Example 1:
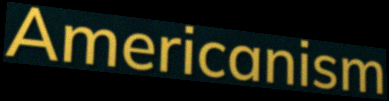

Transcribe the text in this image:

Americanism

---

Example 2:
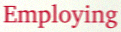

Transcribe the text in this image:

Employing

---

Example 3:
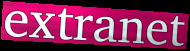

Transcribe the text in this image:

extranet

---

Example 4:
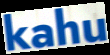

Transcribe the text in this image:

kahu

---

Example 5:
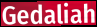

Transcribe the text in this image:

Gedaliah